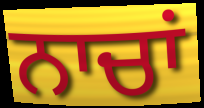
ਨਾਚਾਂ